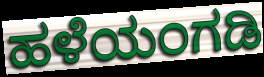
ಹಳೆಯಂಗಡಿ